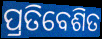
ପ୍ରତିବେଶିତ